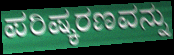
ಪರಿಷ್ಕರಣವನ್ನು